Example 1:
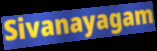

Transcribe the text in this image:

Sivanayagam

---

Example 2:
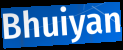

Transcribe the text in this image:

Bhuiyan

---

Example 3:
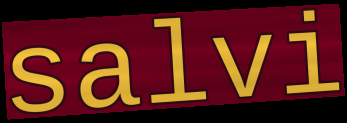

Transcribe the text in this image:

salvi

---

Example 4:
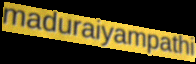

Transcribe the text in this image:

maduraiyampathi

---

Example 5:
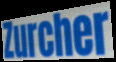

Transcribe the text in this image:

Zurcher